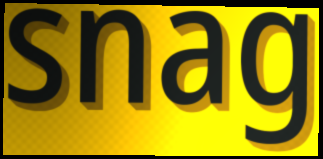
snag